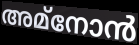
അമ്നോൻ